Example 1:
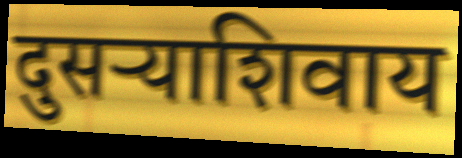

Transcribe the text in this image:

दुसऱ्याशिवाय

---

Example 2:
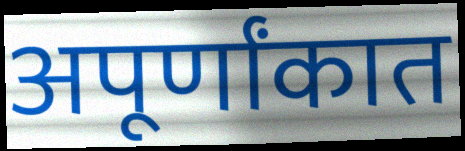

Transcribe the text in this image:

अपूर्णांकात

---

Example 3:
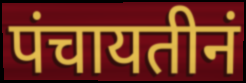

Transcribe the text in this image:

पंचायतीनं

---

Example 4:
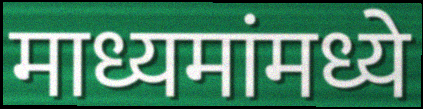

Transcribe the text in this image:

माध्यमांमध्ये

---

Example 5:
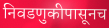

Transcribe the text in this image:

निवडणुकीपासूनच